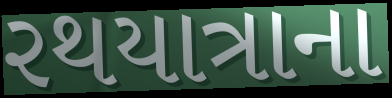
રથયાત્રાના